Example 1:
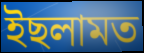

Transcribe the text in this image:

ইছলামত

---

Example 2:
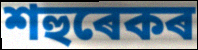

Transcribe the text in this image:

শহুৰেকৰ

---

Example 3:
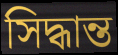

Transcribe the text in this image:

সিদ্ধান্ত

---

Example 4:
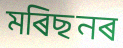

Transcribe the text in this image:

মৰিছনৰ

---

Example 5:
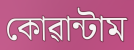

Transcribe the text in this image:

কোৱান্টাম